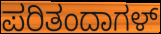
ಪರಿತಂದಾಗಳ್